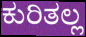
ಕುರಿತಲ್ಲ